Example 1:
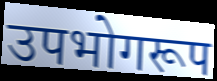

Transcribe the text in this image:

उपभोगरूप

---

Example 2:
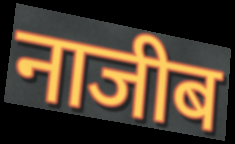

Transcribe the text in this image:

नाजीब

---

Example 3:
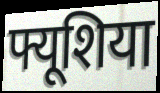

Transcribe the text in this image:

फ्यूशिया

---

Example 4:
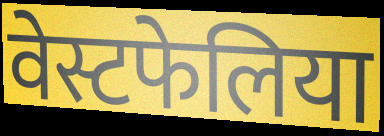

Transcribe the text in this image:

वेस्टफेलिया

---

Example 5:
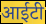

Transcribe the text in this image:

आईटी